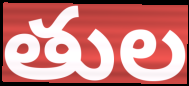
తుల